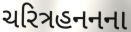
ચરિત્રહનનના